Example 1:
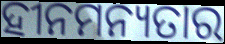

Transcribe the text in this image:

ହୀନମନ୍ୟତାର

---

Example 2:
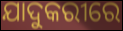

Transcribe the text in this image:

ଯାଦୁକରୀରେ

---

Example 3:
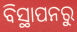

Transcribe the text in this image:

ବିସ୍ଥାପନରୁ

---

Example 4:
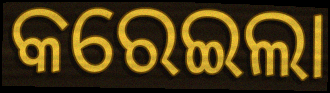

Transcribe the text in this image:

କରେଇଲା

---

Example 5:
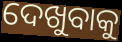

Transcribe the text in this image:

ଦେଖୁବାକୁ